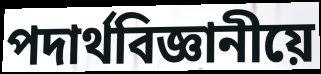
পদাৰ্থবিজ্ঞানীয়ে